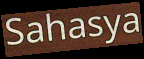
Sahasya